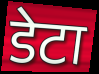
डेटा